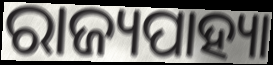
ରାଜ୍ୟପାହ୍ୟା